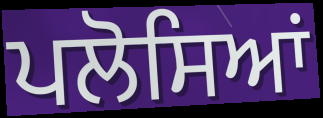
ਪਲੋਸਿਆਂ